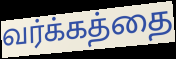
வர்க்கத்தை